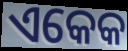
ଏକେକ